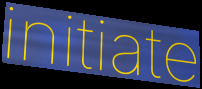
initiate